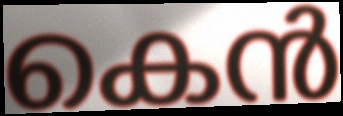
കെൻ